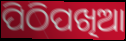
ପିଠିପଖିଆ